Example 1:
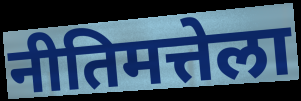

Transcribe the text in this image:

नीतिमत्तेला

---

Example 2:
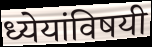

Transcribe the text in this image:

ध्येयांविषयी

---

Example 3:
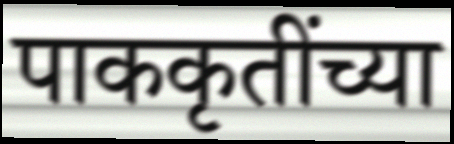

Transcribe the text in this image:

पाककृतींच्या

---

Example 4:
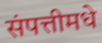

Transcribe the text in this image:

संपत्तीमधे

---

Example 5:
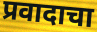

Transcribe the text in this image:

प्रवादाचा